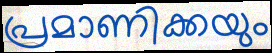
പ്രമാണിക്കയും